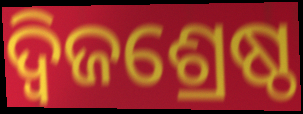
ଦ୍ୱିଜଶ୍ରେଷ୍ଠ